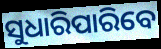
ସୁଧାରିପାରିବେ